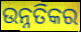
ଉନ୍ନତିକର